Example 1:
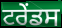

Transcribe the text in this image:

ਟਰੇਂਡਸ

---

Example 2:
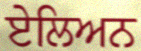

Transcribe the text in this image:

ਏਲਿਅਨ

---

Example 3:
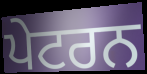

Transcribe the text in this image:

ਪੇਟਰਨ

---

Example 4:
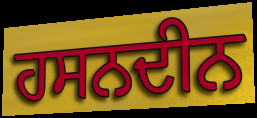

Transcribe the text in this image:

ਹਸਨਦੀਨ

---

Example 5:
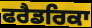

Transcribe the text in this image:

ਫਰੈਡਰਿਕਾ